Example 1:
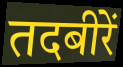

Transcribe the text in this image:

तदबीरें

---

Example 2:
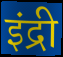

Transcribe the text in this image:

इंद्री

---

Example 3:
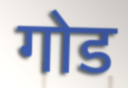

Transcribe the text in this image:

गोड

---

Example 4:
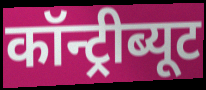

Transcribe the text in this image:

कॉन्ट्रीब्यूट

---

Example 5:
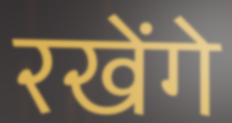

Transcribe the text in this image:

रखेंगे